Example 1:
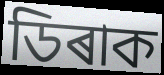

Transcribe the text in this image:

ডিৰাক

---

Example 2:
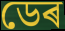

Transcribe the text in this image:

ডেৰ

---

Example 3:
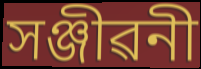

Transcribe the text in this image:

সঞ্জীৱনী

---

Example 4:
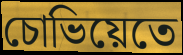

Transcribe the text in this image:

চোভিয়েতে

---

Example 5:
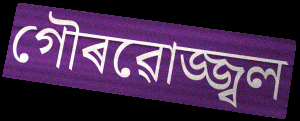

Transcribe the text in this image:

গৌৰৱোজ্জ্বল